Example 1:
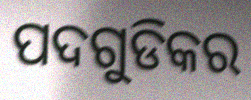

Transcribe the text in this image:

ପଦଗୁଡିକର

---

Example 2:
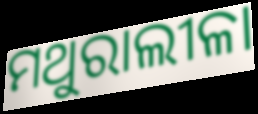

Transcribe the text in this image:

ମଥୁରାଲୀଳା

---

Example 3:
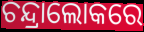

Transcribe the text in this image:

ଚନ୍ଦ୍ରାଲୋକରେ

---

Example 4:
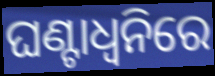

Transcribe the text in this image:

ଘଣ୍ଟାଧ୍ୱନିରେ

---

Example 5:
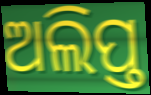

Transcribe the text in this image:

ଅଲିପ୍ତ